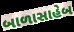
બાળાસાહેબ